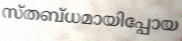
സ്തബ്ധമായിപ്പോയ